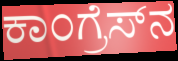
ಕಾಂಗ್ರೆಸ್‍ನ